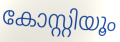
കോസ്റ്റിയൂം